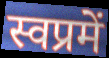
स्वप्रमें